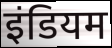
इंडियम